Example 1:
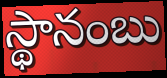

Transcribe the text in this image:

స్థానంబు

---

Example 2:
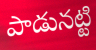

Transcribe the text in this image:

పాడునట్టి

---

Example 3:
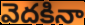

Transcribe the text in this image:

వెదకినా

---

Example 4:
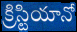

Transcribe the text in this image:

క్రిస్టియానో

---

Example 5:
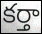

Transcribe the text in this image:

కర్తా